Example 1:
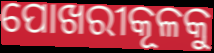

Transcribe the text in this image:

ପୋଖରୀକୂଳକୁ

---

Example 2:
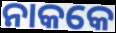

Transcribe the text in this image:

ନାକକେ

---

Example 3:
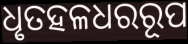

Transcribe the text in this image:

ଧୃତହଳଧରରୂପ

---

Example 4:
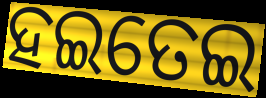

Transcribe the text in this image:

ହଇତେଇ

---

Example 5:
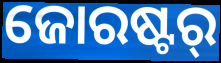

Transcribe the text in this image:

ଜୋରଷ୍ଟର୍